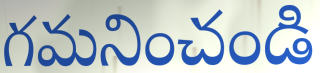
గమనించండి